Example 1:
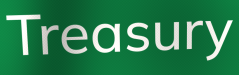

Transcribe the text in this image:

Treasury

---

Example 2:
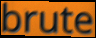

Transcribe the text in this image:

brute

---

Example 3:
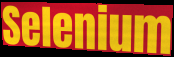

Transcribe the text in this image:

Selenium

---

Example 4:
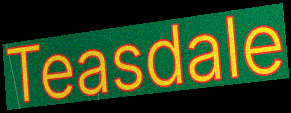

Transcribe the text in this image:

Teasdale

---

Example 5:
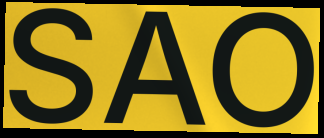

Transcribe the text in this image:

SAO